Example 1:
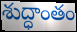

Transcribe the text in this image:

శుద్ధాంతం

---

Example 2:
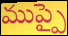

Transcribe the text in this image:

ముప్పై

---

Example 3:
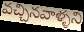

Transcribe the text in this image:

వచ్చినవాళ్ళని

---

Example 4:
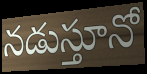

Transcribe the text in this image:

నడుస్తూనో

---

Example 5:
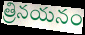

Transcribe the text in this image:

త్రినయనం